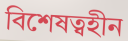
বিশেষত্বহীন